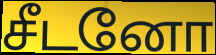
சீடனோ